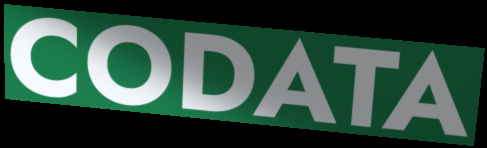
CODATA